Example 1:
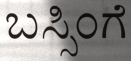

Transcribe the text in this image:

ಬಸ್ಸಿಂಗೆ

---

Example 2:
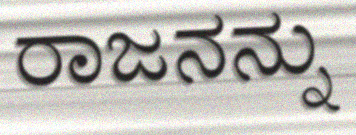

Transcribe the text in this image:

ರಾಜನನ್ನು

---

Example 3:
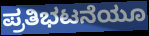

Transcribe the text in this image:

ಪ್ರತಿಭಟನೆಯೂ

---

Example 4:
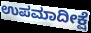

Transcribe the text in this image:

ಉಪಮಾದೀಕ್ಷೆ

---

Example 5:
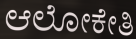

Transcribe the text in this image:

ಆಲೋಕೇತಿ